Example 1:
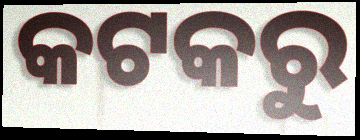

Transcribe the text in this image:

କଟକରୁ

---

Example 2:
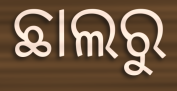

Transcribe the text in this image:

ଛାଲରୁ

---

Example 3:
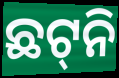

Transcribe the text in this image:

ଛଟ୍‌ନି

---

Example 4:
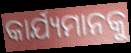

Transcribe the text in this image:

କାର୍ଯ୍ୟମାନକୁ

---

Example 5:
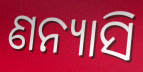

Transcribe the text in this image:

ଣନ୍ୟାସି